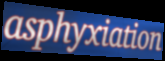
asphyxiation